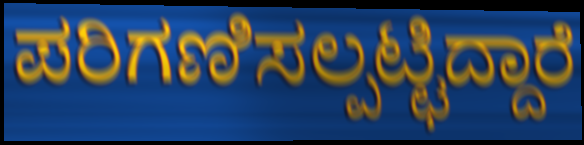
ಪರಿಗಣಿಸಲ್ಪಟ್ಟಿದ್ದಾರೆ